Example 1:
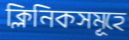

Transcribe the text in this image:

ক্লিনিকসমূহে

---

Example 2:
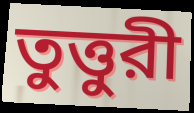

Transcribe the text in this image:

তুত্তুরী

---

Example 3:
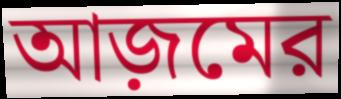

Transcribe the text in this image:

আজ়মের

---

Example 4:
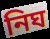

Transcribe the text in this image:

নিঘ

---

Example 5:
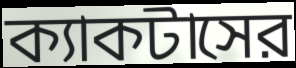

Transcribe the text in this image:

ক্যাকটাসের